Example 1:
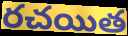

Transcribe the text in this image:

రచయిత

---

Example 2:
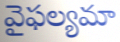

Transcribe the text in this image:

వైఫల్యమా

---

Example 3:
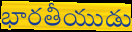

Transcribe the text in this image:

భారతీయుడు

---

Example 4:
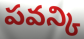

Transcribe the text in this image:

పవన్కి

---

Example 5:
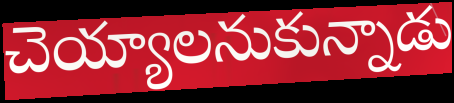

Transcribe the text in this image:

చెయ్యాలనుకున్నాడు